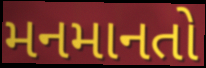
મનમાનતો